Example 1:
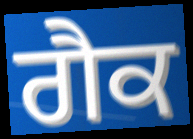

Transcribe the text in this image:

ਗੈਕ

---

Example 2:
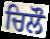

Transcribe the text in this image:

ਚਿਲੌ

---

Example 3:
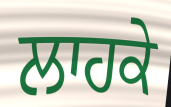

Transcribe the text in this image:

ਲਾਹਕੇ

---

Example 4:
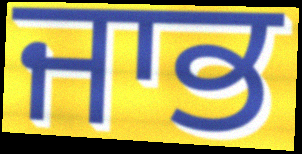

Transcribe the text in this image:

ਜਾਭ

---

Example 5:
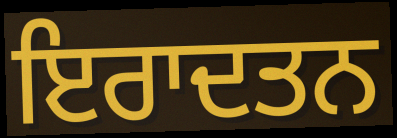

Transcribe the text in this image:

ਇਰਾਦਤਨ